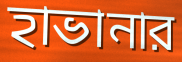
হাভানার